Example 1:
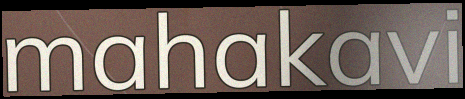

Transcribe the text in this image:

mahakavi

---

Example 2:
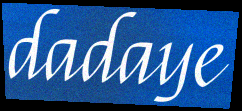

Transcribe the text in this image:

dadaye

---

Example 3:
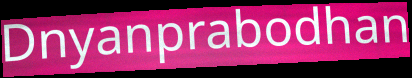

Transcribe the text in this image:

Dnyanprabodhan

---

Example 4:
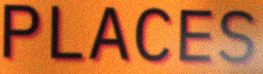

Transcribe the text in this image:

PLACES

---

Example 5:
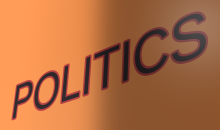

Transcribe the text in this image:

POLITICS